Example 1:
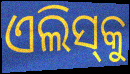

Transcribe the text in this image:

ଏଲିସ୍‌କୁ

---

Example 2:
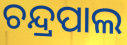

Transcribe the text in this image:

ଚନ୍ଦ୍ରପାଲ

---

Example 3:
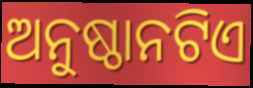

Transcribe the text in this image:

ଅନୁଷ୍ଠାନଟିଏ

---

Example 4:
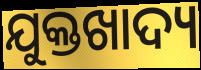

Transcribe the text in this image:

ଯୁକ୍ତଖାଦ୍ୟ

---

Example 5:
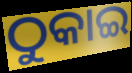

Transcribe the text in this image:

ଠୁକାଇ